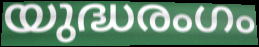
യുദ്ധരംഗം